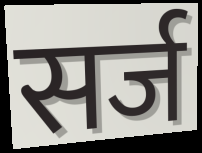
सर्ज